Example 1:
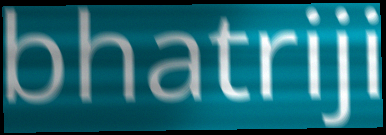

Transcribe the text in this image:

bhatriji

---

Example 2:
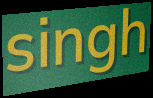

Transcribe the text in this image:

singh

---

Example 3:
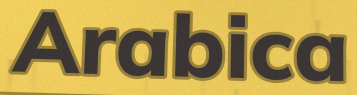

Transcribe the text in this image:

Arabica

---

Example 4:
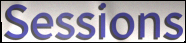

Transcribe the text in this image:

Sessions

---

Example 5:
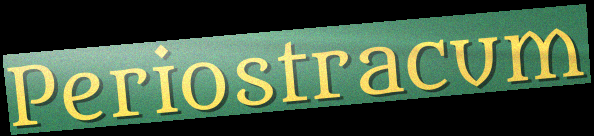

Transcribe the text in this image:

Periostracum